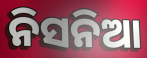
ନିସନିଆ